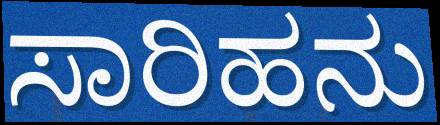
ಸಾರಿಹನು